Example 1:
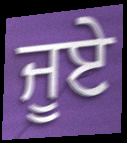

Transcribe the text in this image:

ਜੂਏ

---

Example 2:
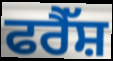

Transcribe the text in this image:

ਫਰੈੱਸ਼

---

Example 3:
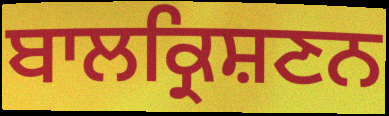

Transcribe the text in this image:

ਬਾਲਕ੍ਰਿਸ਼ਣਨ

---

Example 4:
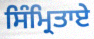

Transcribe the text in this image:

ਸਿੰਮ੍ਰਿਤਾਏ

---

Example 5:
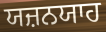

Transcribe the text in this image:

ਯਜ਼ਨਯਾਹ